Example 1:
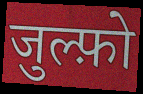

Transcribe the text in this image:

जुल्फ़ो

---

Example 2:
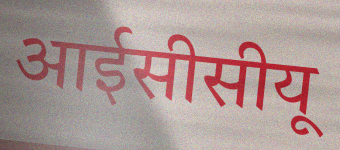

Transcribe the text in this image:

आईसीसीयू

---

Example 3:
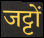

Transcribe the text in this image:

जट्टों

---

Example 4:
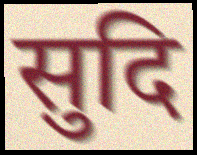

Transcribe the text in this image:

सुदि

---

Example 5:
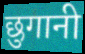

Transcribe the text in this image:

छुगानी